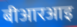
बीआरआइ